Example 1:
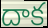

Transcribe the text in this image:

దాక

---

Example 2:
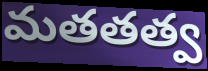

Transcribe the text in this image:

మతతత్వ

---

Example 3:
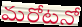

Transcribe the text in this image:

మరోటనో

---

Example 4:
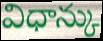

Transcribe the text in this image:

విధాన్కు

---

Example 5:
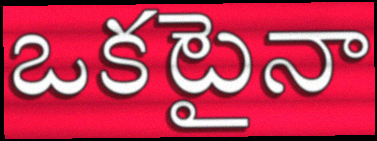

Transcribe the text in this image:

ఒకటైనా